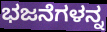
ಭಜನೆಗಳನ್ನ